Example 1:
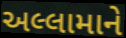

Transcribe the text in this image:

અલ્લામાને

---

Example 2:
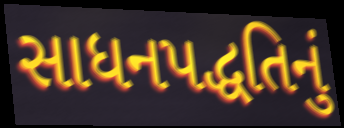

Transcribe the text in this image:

સાધનપદ્ધતિનું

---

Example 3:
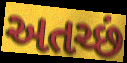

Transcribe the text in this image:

અતચ્છં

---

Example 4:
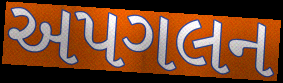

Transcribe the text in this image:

અપગલન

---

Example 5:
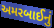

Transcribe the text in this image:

અમરબાઈનું